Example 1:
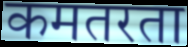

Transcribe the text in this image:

कमतरता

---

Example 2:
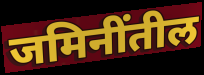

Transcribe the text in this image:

जमिनींतील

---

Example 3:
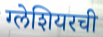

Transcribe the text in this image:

ग्लेशियरची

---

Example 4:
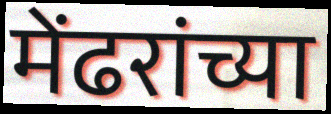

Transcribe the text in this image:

मेंढरांच्या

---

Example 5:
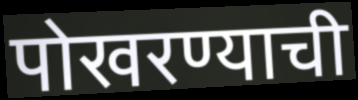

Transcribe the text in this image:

पोखरण्याची